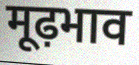
मूढ़भाव